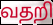
வதறி